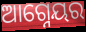
ଆଗ୍ନେୟର